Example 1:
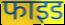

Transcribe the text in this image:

फाइड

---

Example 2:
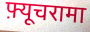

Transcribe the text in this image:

फ़्यूचरामा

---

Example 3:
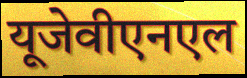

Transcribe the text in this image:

यूजेवीएनएल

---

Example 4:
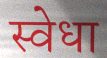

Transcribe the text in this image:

स्वेधा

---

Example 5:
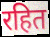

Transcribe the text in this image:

रहित